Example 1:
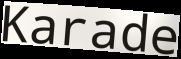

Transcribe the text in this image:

Karade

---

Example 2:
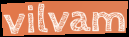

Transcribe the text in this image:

vilvam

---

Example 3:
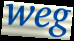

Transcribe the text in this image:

weg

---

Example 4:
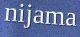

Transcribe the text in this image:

nijama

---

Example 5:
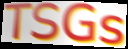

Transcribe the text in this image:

TSGs